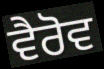
ਵੈਰੋਵ